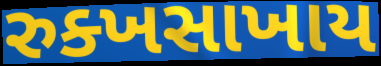
રુક્ખસાખાય